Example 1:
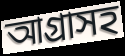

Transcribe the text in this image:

আগ্রাসহ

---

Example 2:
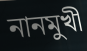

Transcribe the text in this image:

নানমুখী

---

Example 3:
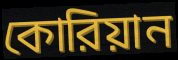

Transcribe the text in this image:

কোরিয়ান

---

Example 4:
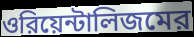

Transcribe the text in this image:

ওরিয়েন্টালিজমের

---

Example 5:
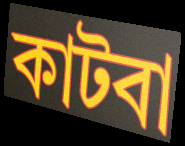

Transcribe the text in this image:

কাটবা